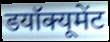
डयॉक्‍यूमेंट